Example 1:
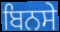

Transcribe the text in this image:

ਬਿਨਸੇ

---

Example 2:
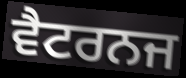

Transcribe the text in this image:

ਵੈਟਰਨਜ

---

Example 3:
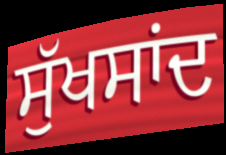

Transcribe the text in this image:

ਸੁੱਖਸਾਂਦ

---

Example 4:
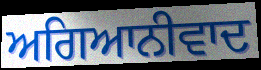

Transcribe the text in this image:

ਅਗਿਆਨੀਵਾਦ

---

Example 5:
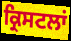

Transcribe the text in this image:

ਕ੍ਰਿਸਟਲਾਂ